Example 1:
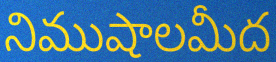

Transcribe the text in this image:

నిముషాలమీద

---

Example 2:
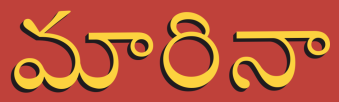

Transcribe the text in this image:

మారినా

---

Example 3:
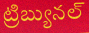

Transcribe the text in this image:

ట్రిబ్యునల్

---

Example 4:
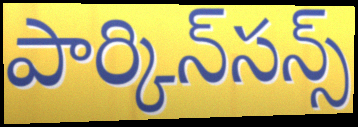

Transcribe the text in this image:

పార్కిన్‌సన్స్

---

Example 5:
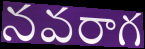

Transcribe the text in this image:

నవరాగ